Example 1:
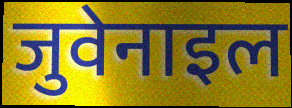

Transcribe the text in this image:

जुवेनाइल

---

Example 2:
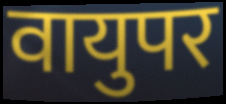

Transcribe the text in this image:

वायुपर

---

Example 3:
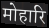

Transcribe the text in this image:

मोहारि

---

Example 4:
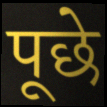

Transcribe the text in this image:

पूछे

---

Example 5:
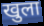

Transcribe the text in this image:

खुला